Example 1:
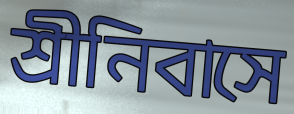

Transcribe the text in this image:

শ্ৰীনিবাসে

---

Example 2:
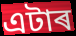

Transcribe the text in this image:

এটাৰ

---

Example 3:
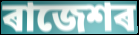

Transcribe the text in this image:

ৰাজেশৰ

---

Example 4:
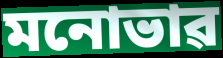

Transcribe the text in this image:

মনোভাৱ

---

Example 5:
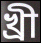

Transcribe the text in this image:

খ্ৰী